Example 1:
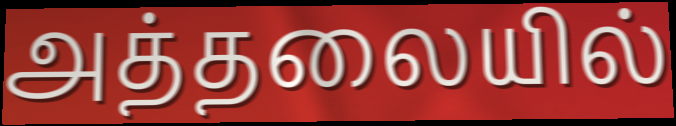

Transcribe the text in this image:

அத்தலையில்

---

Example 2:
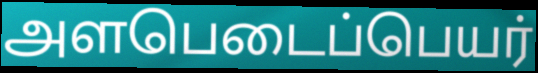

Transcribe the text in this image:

அளபெடைப்பெயர்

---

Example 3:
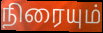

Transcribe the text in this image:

நிரையும்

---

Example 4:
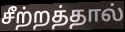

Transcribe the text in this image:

சீற்றத்தால்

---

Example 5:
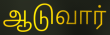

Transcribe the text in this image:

ஆடுவார்